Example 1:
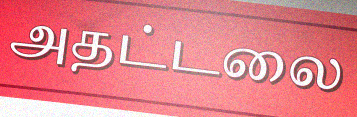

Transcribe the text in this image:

அதட்டலை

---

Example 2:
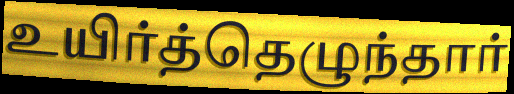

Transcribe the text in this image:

உயிர்த்தெழுந்தார்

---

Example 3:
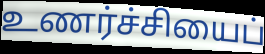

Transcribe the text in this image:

உணர்ச்சியைப்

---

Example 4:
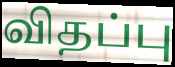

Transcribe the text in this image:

விதப்பு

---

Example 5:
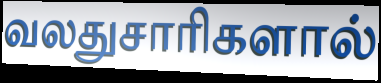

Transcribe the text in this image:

வலதுசாரிகளால்